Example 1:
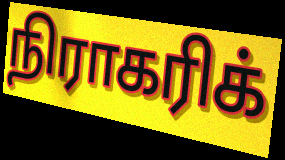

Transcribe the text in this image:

நிராகரிக்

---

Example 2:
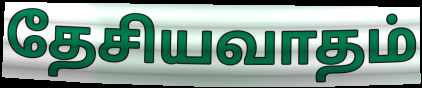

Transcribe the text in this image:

தேசியவாதம்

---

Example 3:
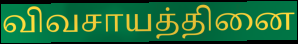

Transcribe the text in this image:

விவசாயத்தினை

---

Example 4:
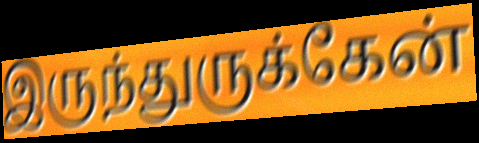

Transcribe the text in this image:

இருந்துருக்கேன்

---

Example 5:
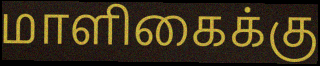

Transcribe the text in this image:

மாளிகைக்கு